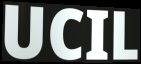
UCIL